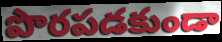
పొరపడకుండా